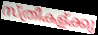
സ്ത്രീകള്ക്കു